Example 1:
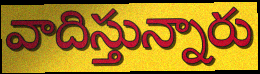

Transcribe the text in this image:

వాదిస్తున్నారు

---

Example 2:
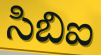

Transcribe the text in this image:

సిబిఐ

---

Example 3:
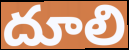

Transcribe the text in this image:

దూలి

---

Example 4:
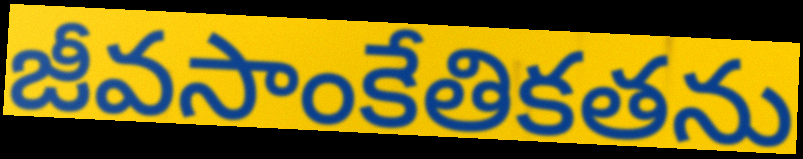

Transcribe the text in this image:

జీవసాంకేతికతను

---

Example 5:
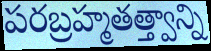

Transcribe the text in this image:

పరబ్రహ్మతత్త్వాన్ని